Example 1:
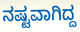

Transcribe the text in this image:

ನಷ್ಟವಾಗಿದ್ದ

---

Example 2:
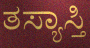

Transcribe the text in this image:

ತಸ್ಯಾಸ್ತಿ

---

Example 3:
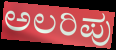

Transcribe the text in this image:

ಅಲರಿಪು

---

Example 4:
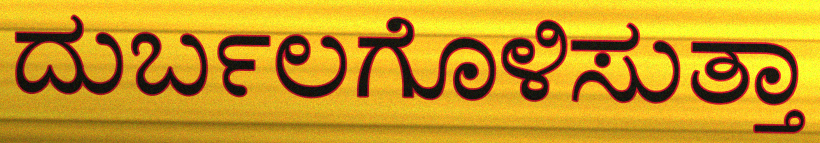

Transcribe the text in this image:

ದುರ್ಬಲಗೊಳಿಸುತ್ತಾ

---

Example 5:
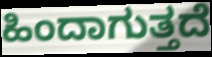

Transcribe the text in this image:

ಹಿಂದಾಗುತ್ತದೆ